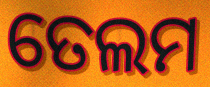
ତେଲମ